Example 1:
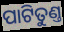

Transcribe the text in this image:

ପାଟିତୁଣ୍ତ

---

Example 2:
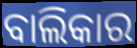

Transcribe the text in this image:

ବାଲିକାର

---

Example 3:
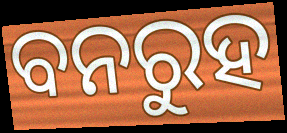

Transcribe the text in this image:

ବନରୁହ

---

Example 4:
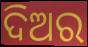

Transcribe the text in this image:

ଦିଅର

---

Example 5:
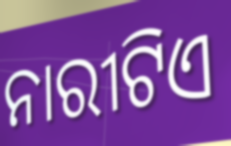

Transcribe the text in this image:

ନାରୀଟିଏ